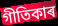
গীতিকাৰ